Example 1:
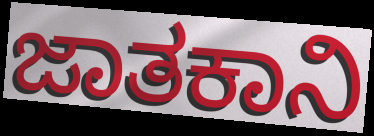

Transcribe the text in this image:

ಜಾತಕಾನಿ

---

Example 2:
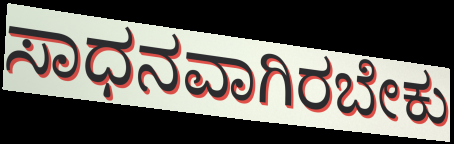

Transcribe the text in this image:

ಸಾಧನವಾಗಿರಬೇಕು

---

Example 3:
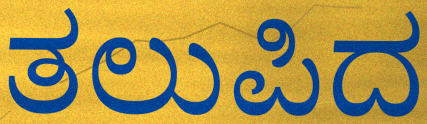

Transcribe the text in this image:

ತಲುಪಿದ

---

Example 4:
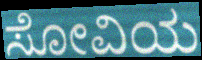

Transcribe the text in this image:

ಸೋವಿಯ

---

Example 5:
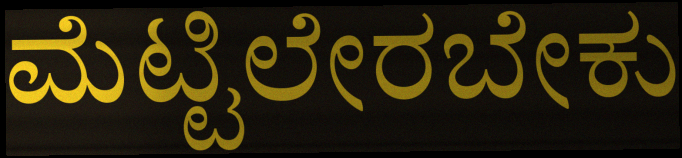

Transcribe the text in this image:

ಮೆಟ್ಟಿಲೇರಬೇಕು